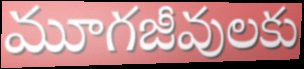
మూగజీవులకు